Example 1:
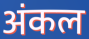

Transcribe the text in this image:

अंकल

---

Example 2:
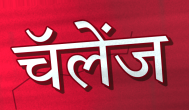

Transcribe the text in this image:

चॅलेंज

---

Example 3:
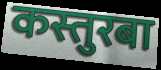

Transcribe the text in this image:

कस्तुरबा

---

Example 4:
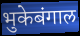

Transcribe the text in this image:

भुकेबंगाल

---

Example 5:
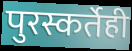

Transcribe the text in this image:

पुरस्कर्तेही